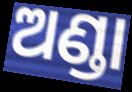
ଅଣ୍ଡା